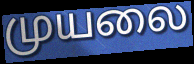
முயலை